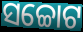
ସଚ୍ଚୋଟ